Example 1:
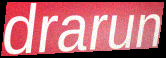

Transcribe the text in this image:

drarun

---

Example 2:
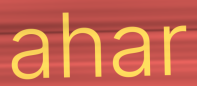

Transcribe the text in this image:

ahar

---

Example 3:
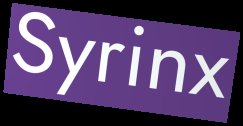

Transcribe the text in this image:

Syrinx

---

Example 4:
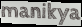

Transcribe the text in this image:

manikya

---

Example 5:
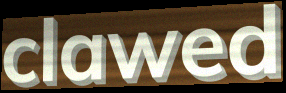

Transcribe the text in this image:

clawed